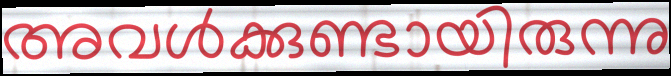
അവൾക്കുണ്ടായിരുന്നു